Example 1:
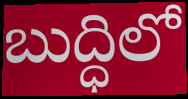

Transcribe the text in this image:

బుద్ధిలో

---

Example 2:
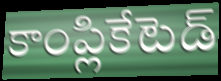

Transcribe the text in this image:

కాంప్లికేటెడ్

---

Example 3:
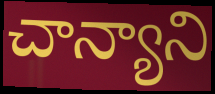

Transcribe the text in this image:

చాన్యాని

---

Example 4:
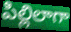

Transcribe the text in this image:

పిల్లిలాగా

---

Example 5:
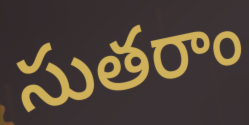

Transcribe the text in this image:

సుతరాం